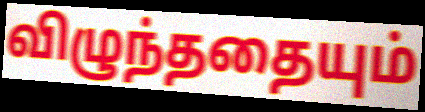
விழுந்ததையும்